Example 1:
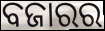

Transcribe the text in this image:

ବଜାରର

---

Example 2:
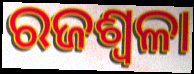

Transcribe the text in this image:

ରଜଶ୍ୱଳା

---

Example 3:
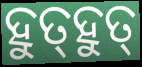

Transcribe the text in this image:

ହୁତ୍‍ହୁତ୍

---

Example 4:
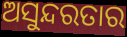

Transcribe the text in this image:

ଅସୁନ୍ଦରତାର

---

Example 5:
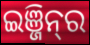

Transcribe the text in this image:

ଇଞ୍ଜିନ୍‌ର